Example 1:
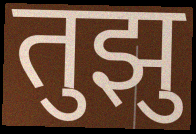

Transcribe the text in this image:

तुझु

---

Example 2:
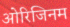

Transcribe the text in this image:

ओरिजिनम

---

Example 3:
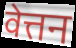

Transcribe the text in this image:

वेत्तन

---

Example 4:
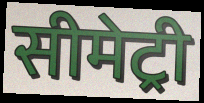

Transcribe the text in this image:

सीमेट्री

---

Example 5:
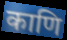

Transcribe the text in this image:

काणि